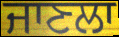
ਜਾਣਲਾ